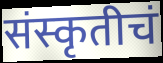
संस्कृतीचं